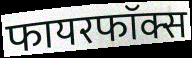
फायरफॉक्स